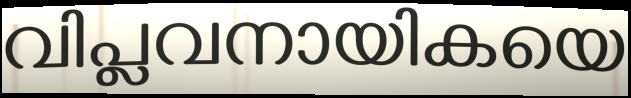
വിപ്ലവനായികയെ